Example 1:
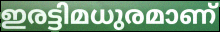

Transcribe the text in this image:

ഇരട്ടിമധുരമാണ്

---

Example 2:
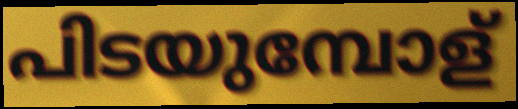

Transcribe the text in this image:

പിടയുമ്പോള്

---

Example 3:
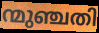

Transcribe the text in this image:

ന്മുഞ്ചതി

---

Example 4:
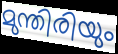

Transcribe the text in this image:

മുന്തിരിയും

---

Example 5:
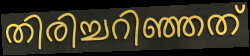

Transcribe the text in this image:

തിരിച്ചറിഞ്ഞത്